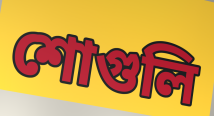
শোগুলি